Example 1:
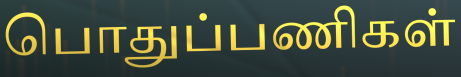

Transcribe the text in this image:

பொதுப்பணிகள்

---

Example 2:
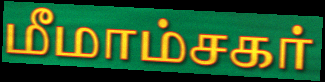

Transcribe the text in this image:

மீமாம்சகர்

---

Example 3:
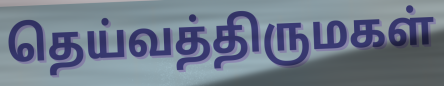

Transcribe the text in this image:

தெய்வத்திருமகள்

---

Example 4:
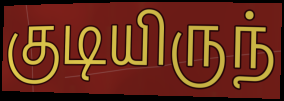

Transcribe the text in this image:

குடியிருந்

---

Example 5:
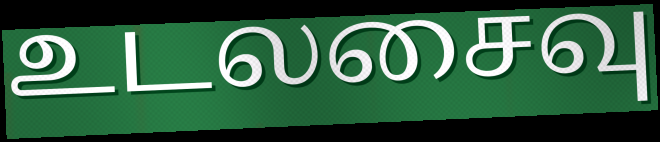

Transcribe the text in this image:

உடலசைவு